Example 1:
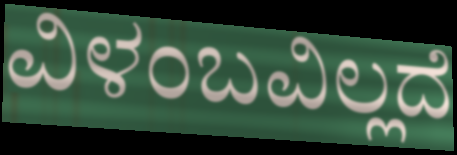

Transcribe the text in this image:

ವಿಳಂಬವಿಲ್ಲದೆ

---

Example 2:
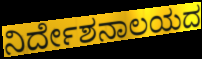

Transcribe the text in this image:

ನಿರ್ದೇಶನಾಲಯದ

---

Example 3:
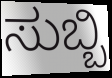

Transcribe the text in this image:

ಸುಬ್ಬಿ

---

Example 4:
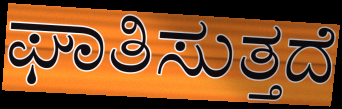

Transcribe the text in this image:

ಘಾತಿಸುತ್ತದೆ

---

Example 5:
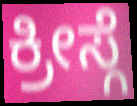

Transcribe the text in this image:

ಕ್ರೀಸ್ಗೆ